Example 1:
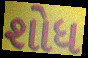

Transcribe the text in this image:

શોધ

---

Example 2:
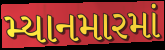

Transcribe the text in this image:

મ્યાનમારમાં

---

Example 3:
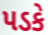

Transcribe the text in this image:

પડકે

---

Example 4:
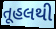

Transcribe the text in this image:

તૂહલથી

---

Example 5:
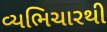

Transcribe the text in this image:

વ્યભિચારથી